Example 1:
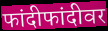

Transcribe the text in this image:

फांदीफांदीवर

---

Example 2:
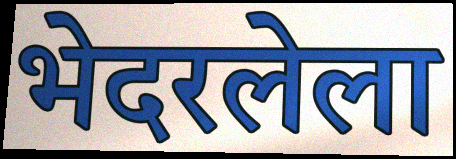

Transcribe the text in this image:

भेदरलेला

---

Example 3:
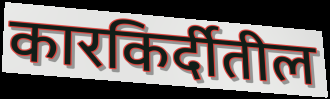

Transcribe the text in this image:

कारकिर्दीतील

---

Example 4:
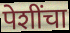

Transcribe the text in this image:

पेशींचा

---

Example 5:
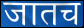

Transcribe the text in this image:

जातच